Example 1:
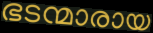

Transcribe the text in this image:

ഭടന്മാരായ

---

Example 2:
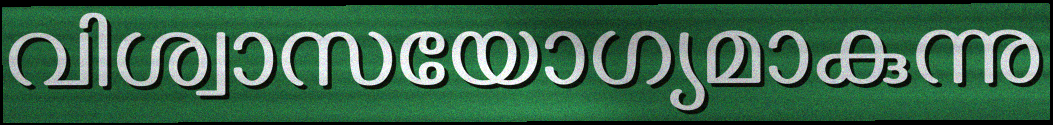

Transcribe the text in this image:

വിശ്വാസയോഗ്യമാകുന്നു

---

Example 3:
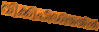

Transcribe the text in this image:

വിക്കിപീഡിയയിൽ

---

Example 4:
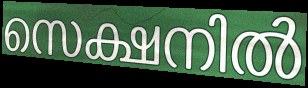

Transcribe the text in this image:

സെക്ഷനിൽ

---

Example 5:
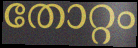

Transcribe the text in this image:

തോറ്റം